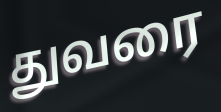
துவரை